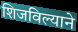
शिजविल्याने